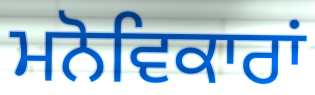
ਮਨੋਵਿਕਾਰਾਂ